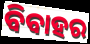
ବିବାହର